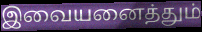
இவையனைத்தும்